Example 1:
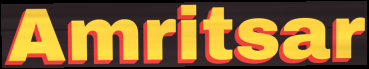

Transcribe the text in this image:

Amritsar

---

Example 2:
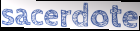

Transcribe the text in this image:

sacerdote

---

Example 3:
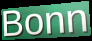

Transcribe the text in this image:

Bonn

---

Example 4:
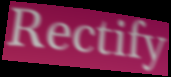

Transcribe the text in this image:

Rectify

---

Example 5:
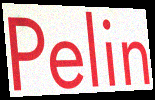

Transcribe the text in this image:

Pelin